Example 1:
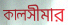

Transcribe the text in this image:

কালসীমার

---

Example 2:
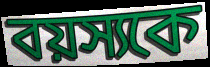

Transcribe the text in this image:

বয়স্যকে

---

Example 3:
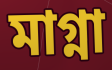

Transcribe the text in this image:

মাগ্না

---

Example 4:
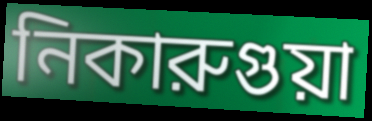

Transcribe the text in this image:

নিকারুগুয়া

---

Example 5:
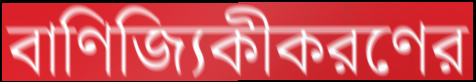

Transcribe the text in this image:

বাণিজ্যিকীকরণের